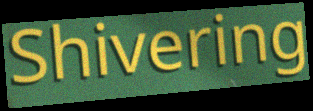
Shivering